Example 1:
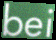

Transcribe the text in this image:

bei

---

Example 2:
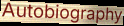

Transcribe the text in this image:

Autobiography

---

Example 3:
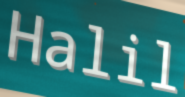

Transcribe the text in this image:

Halil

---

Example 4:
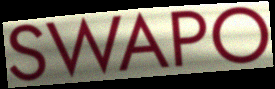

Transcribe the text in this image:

SWAPO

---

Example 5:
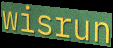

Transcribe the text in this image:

wisrun